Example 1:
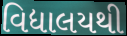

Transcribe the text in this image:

વિદ્યાલયથી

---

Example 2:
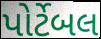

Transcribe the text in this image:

પોર્ટેબલ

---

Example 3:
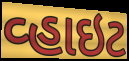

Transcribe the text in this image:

વ્હાઇટ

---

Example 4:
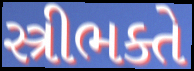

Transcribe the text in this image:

સ્ત્રીભક્તે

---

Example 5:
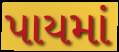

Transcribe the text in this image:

પાયમાં